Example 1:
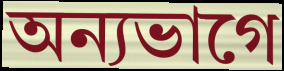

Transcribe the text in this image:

অন্যভাগে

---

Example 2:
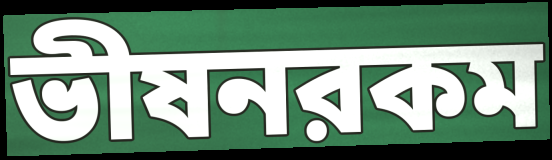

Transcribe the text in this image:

ভীষনরকম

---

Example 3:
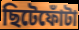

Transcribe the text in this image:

ছিটেফোঁটা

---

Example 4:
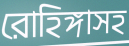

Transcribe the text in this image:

রোহিঙ্গাসহ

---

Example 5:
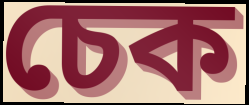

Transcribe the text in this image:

চেক